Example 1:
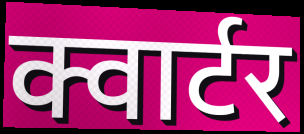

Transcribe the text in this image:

क्वार्टर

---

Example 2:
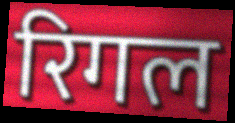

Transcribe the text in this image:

रिगल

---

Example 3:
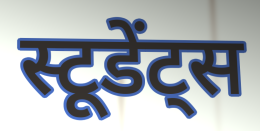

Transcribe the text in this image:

स्टूडेंट्स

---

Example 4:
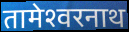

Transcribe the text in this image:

तामेश्वरनाथ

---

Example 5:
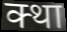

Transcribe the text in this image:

क्था